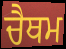
ਚੈਥਮ